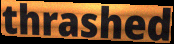
thrashed